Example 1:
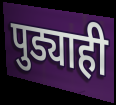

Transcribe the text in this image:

पुड्याही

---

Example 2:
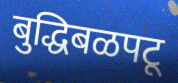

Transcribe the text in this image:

बुद्धिबळपटू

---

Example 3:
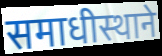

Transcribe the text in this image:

समाधीस्थाने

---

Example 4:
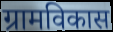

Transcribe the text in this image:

ग्रामविकास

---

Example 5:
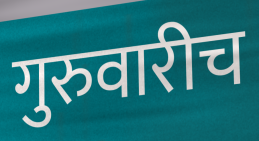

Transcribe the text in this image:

गुरुवारीच